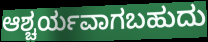
ಆಶ್ಚರ್ಯವಾಗಬಹುದು